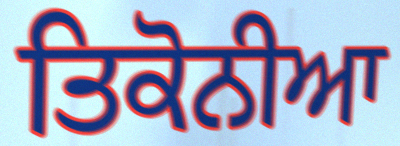
ਤਿਕੋਨੀਆ